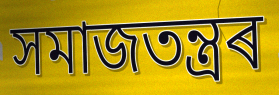
সমাজতন্ত্ৰৰ